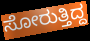
ಸೋರುತ್ತಿದ್ದ